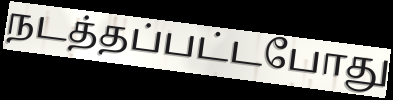
நடத்தப்பட்டபோது